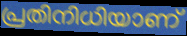
പ്രതിനിധിയാണ്